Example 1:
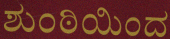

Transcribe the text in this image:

ಶುಂಠಿಯಿಂದ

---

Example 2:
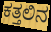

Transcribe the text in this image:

ಕತ್ತಲಿನ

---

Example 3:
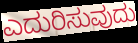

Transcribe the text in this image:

ಎದುರಿಸುವುದು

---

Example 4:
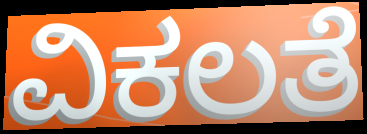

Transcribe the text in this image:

ವಿಕಲತೆ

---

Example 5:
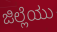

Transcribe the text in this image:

ಜಿಲ್ಲೆಯು